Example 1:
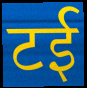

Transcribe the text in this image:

टई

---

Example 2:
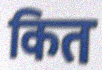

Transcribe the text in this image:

कित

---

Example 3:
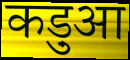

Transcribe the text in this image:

कड़ुआ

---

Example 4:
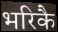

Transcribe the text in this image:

भरिकै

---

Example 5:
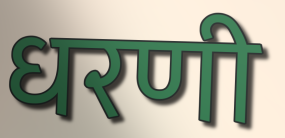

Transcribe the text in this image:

धरणी